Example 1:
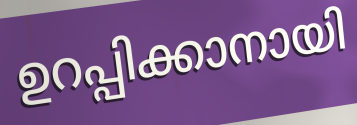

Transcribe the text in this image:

ഉറപ്പിക്കാനായി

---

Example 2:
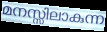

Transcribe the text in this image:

മനസ്സിലാകുന്ന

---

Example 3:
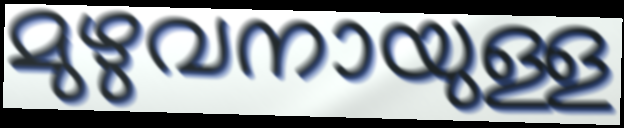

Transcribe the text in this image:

മുഴുവനായുള്ള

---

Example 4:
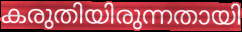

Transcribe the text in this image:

കരുതിയിരുന്നതായി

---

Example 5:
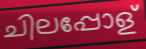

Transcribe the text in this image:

ചിലപ്പോള്